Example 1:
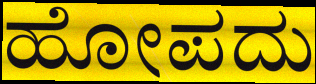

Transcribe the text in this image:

ಹೋಪದು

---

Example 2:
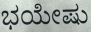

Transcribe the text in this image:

ಭಯೇಷು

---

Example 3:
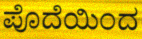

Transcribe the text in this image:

ಪೊದೆಯಿಂದ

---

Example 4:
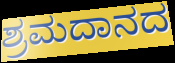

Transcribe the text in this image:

ಶ್ರಮದಾನದ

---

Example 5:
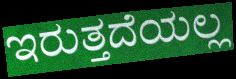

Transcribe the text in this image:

ಇರುತ್ತದೆಯಲ್ಲ